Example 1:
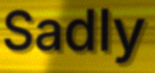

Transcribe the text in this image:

Sadly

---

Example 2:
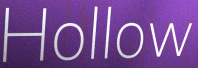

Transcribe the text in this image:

Hollow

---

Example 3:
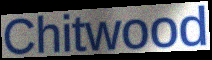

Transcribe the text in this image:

Chitwood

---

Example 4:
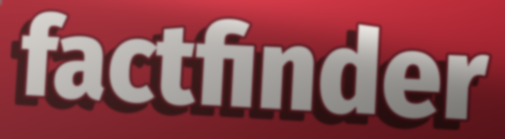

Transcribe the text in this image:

factfinder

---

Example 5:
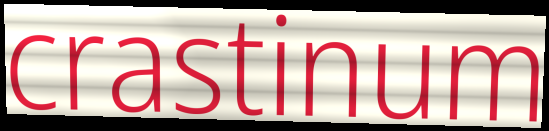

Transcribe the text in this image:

crastinum